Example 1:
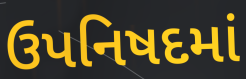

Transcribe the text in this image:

ઉપનિષદમાં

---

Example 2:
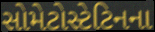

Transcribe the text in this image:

સોમેટોસ્ટેટિનના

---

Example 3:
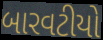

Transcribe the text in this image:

બારવટીયો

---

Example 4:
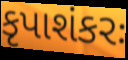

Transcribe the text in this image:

કૃપાશંકરઃ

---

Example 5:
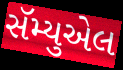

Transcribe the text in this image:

સૅમ્યુએલ